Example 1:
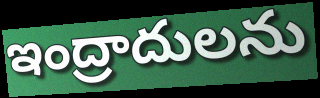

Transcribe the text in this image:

ఇంద్రాదులను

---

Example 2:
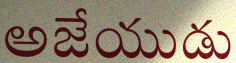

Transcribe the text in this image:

అజేయుడు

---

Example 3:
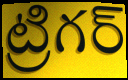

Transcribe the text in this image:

ట్రిగర్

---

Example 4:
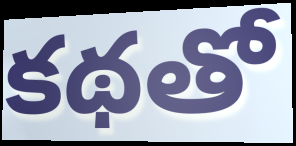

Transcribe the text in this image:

కథతో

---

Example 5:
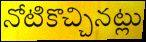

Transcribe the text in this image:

నోటికొచ్చినట్లు